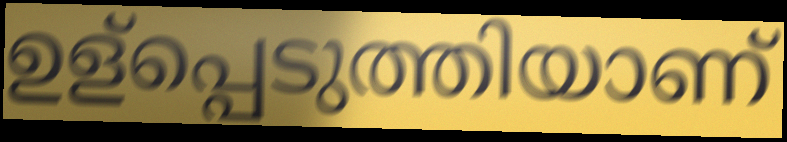
ഉള്പ്പെടുത്തിയാണ്